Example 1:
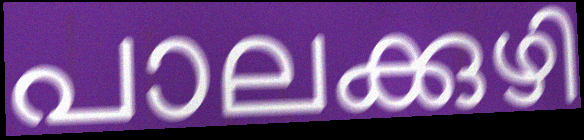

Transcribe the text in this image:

പാലക്കുഴി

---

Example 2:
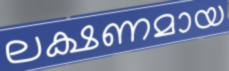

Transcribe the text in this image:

ലക്ഷണമായ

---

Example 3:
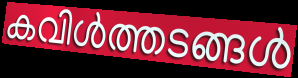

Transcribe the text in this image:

കവിൾത്തടങ്ങൾ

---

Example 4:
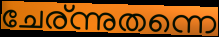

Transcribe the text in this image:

ചേര്ന്നുതന്നെ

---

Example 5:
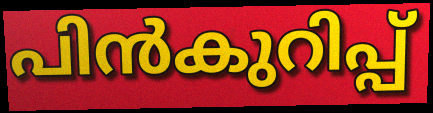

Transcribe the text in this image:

പിൻകുറിപ്പ്